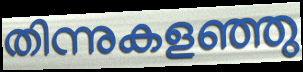
തിന്നുകളഞ്ഞു